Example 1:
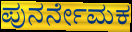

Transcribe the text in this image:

ಪುನರ್ನೇಮಕ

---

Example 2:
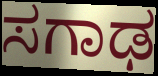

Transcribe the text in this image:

ಸಗಾಢ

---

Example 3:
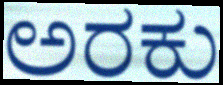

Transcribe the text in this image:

ಅರಕು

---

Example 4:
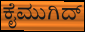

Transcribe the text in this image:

ಕೈಮುಗಿದ್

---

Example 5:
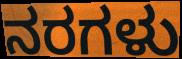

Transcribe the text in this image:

ನರಗಳು